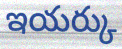
ఇయర్కు